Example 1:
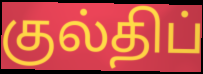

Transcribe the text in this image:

குல்திப்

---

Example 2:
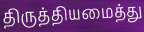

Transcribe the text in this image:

திருத்தியமைத்து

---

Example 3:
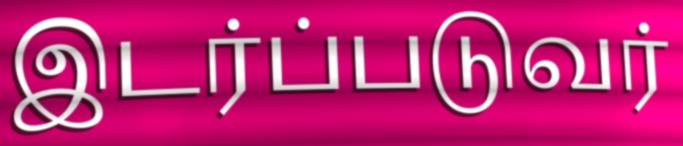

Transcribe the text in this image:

இடர்ப்படுவர்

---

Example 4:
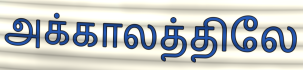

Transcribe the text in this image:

அக்காலத்திலே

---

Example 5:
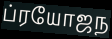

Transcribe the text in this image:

ப்ரயோஜந